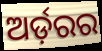
ଅର୍ଡ଼ରର